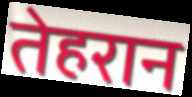
तेहरान